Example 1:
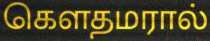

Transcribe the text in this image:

கௌதமரால்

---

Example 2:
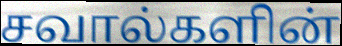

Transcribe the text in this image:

சவால்களின்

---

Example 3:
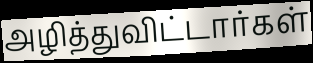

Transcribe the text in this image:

அழித்துவிட்டார்கள்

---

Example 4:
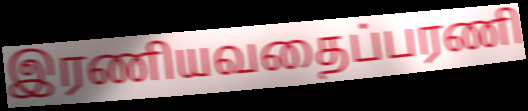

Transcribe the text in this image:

இரணியவதைப்பரணி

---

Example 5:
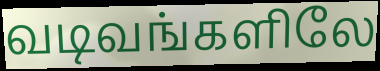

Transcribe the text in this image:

வடிவங்களிலே